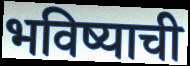
भविष्याची